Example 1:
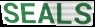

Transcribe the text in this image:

SEALS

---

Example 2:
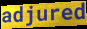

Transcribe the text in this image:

adjured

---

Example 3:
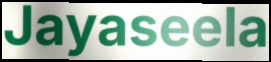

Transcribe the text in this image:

Jayaseela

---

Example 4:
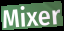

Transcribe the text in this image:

Mixer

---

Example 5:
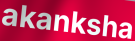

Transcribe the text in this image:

akanksha